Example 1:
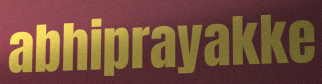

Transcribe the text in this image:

abhiprayakke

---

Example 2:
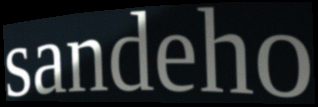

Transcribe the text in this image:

sandeho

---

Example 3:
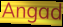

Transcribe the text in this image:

Angad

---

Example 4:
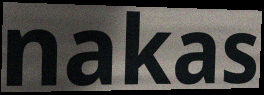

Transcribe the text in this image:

nakas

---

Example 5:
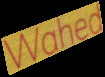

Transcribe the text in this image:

Wahed